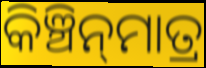
କିଞ୍ଚିନ୍‍ମାତ୍ର